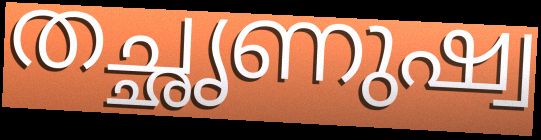
തച്ഛൃണുഷ്വ